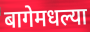
बागेमधल्या